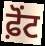
ਫ਼ੋਂਟ